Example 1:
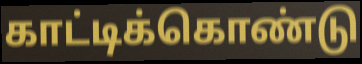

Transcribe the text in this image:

காட்டிக்கொண்டு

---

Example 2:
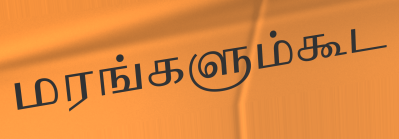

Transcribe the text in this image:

மரங்களும்கூட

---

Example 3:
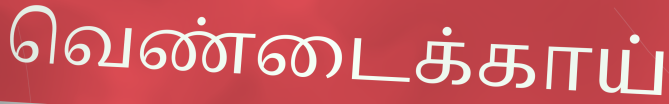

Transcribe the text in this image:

வெண்டைக்காய்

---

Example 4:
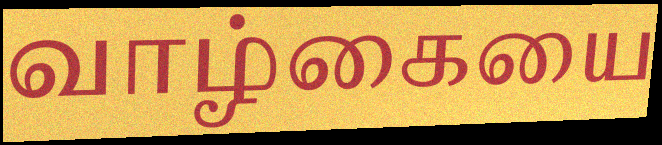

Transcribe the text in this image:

வாழ்கையை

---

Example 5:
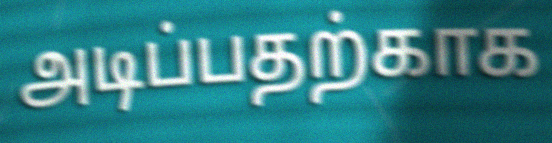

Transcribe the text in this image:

அடிப்பதற்காக